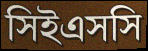
সিইএসসি